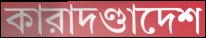
কারাদণ্ডাদেশ